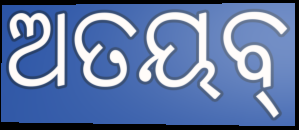
ଅତୟବ୍